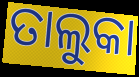
ତାଲୁକା